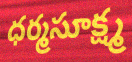
ధర్మసూక్ష్మ